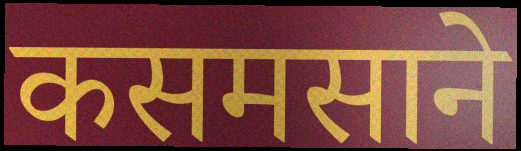
कसमसाने